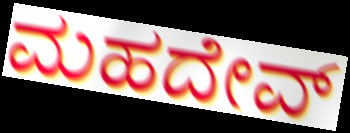
ಮಹದೇವ್